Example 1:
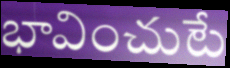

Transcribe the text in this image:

భావించుటే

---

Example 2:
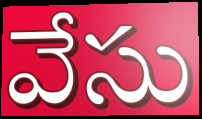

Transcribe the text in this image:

వేసు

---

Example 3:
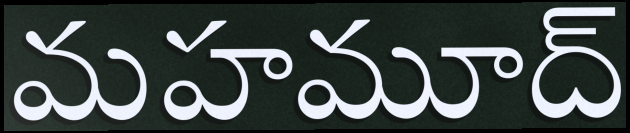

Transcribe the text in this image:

మహమూద్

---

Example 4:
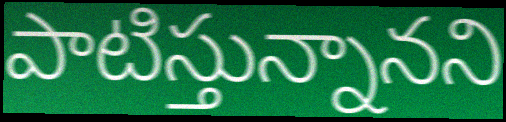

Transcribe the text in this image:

పాటిస్తున్నానని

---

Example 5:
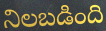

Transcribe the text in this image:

నిలబడింది